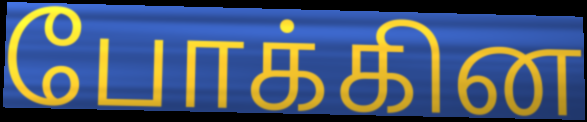
போக்கின